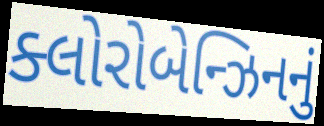
ક્લોરોબેન્ઝિનનું